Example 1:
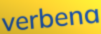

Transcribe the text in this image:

verbena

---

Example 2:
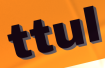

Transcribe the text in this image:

ttul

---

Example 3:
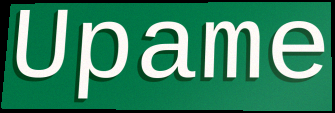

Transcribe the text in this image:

Upame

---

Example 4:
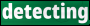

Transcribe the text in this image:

detecting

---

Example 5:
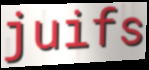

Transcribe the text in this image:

juifs